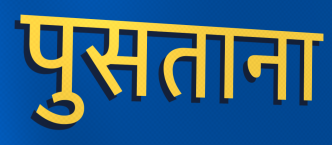
पुसताना